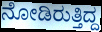
ನೋಡಿರುತ್ತಿದ್ದ